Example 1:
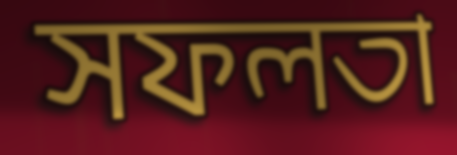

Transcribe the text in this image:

সফলতা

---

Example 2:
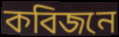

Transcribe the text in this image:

কবিজনে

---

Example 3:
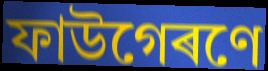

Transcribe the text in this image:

ফাউগেৰণে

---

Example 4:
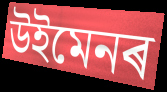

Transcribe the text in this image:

উইমেনৰ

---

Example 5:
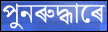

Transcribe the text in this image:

পুনৰুদ্ধাৰে